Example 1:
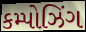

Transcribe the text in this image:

કમ્પોઝિંગ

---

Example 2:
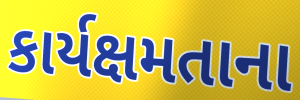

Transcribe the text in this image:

કાર્યક્ષમતાના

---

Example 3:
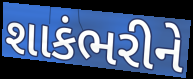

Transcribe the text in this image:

શાકંભરીને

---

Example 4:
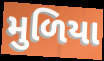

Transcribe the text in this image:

મુળિયા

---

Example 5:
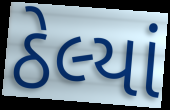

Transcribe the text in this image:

ઠેલ્યાં